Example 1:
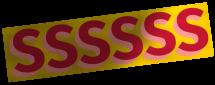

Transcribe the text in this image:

ssssss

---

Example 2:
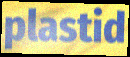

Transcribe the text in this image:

plastid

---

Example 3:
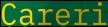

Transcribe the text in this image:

Careri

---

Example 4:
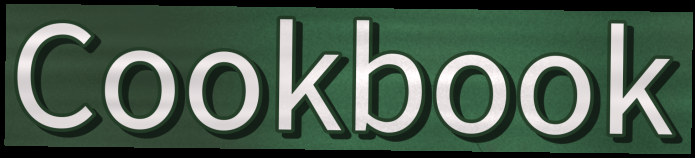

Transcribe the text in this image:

Cookbook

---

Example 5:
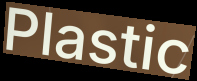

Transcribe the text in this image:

Plastic